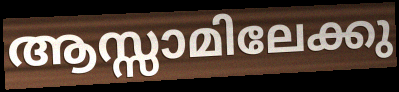
ആസ്സാമിലേക്കു